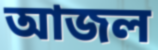
আজল